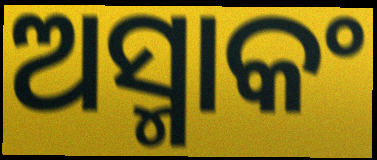
ଅସ୍ମାକଂ